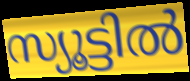
സ്യൂട്ടിൽ